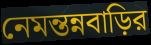
নেমন্তন্নবাড়ির